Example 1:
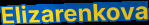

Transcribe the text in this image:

Elizarenkova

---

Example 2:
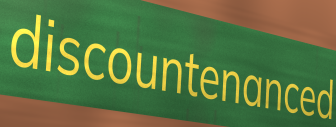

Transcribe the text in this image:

discountenanced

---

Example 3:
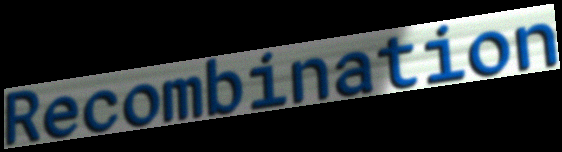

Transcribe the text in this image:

Recombination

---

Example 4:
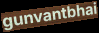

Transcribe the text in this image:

gunvantbhai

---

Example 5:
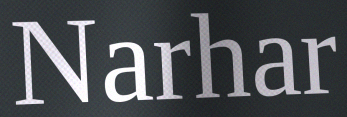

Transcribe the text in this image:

Narhar